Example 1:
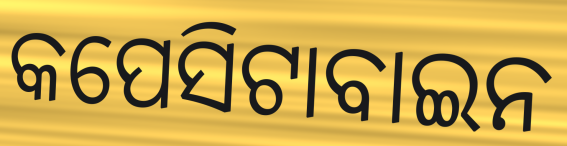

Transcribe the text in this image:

କପେସିଟାବାଇନ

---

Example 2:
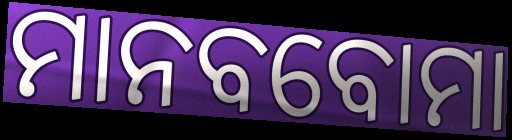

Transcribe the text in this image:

ମାନବବୋମା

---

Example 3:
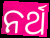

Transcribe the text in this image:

ନର୍ଥ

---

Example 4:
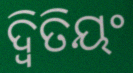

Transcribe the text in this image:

ଦ୍ୱିତିୟଂ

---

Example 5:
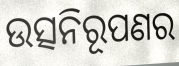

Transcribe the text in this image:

ଉତ୍ସନିରୂପଣର